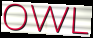
OWL